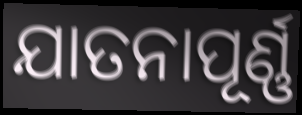
ଯାତନାପୂର୍ଣ୍ଣ